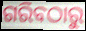
ଗରିବଠାରୁ